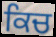
ਕਿਚ